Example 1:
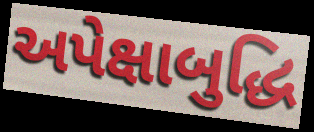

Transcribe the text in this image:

અપેક્ષાબુદ્ધિ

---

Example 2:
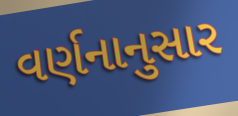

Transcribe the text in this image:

વર્ણનાનુસાર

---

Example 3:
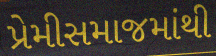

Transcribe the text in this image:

પ્રેમીસમાજમાંથી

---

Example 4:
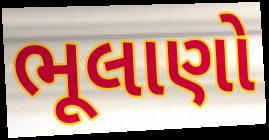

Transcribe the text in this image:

ભૂલાણો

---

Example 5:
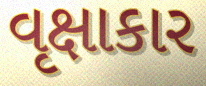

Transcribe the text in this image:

વૃક્ષાકાર